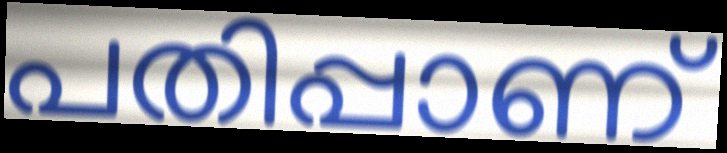
പതിപ്പാണ്